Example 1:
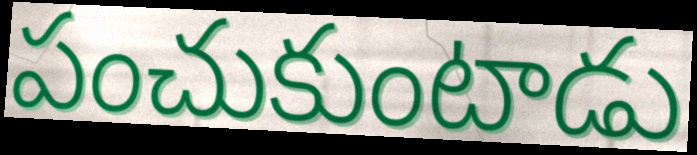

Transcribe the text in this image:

పంచుకుంటాడు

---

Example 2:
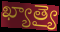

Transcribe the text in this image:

ఖ్యాత్యై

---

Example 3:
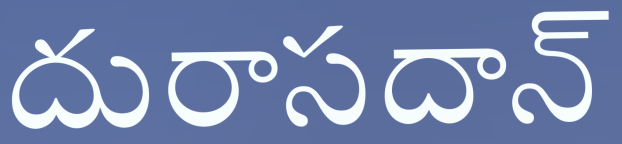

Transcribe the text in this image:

దురాసదాన్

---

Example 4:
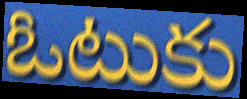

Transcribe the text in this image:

ఓటుకు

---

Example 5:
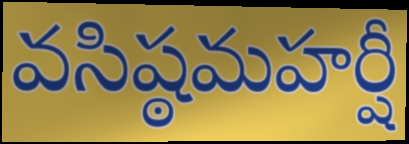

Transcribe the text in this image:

వసిష్ఠమహర్షీ